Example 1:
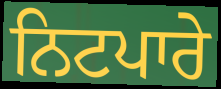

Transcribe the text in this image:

ਨਿਟਪਾਰੇ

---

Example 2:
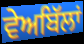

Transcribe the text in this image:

ਵੇਅਬਿੱਲਾਂ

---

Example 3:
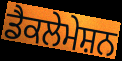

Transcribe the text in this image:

ਡੈਕਲੇਮੇਸ਼ਨ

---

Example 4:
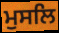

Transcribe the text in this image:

ਮੁਸਲਿ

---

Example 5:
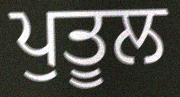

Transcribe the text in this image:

ਪੁਤੂਲ